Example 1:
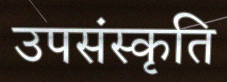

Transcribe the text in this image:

उपसंस्कृति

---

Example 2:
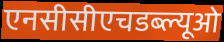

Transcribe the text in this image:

एनसीसीएचडब्ल्यूओ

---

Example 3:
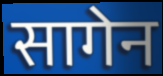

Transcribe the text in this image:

सागेन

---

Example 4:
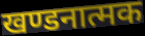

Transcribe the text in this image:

खण्डनात्मक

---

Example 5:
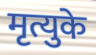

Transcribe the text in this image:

मृत्युके